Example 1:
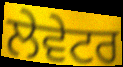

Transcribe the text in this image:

ਲੇਵੇਟਰ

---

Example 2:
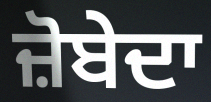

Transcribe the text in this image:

ਜ਼ੋਬੇਦਾ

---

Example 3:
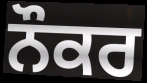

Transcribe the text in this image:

ਨੌਕਰ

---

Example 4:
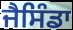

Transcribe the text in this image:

ਜੈਸਿੰਡਾ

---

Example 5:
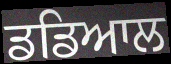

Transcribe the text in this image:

ਡਡਿਆਲ